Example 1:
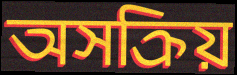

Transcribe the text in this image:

অসক্রিয়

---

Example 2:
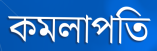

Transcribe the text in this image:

কমলাপতি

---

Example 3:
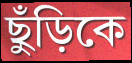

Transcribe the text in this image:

ছুঁড়িকে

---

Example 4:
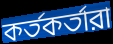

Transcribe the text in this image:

কর্তকর্তারা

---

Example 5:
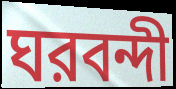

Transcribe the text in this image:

ঘরবন্দী